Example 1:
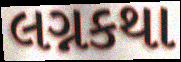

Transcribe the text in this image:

લગ્નકથા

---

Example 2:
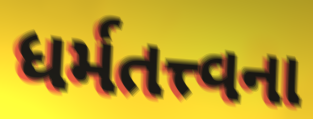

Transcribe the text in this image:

ધર્મતત્ત્વના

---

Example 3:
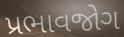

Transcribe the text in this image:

પ્રભાવજોગ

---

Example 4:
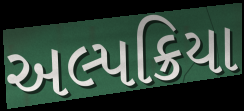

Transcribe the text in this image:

અલ્પક્રિયા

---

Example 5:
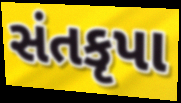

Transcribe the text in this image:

સંતકૃપા